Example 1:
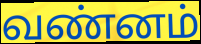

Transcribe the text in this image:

வண்னம்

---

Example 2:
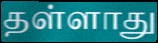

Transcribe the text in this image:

தள்ளாது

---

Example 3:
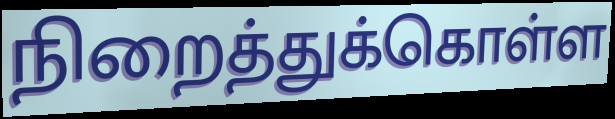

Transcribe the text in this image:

நிறைத்துக்கொள்ள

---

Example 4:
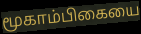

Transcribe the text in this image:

மூகாம்பிகையை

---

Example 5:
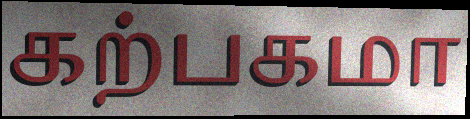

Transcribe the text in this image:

கற்பகமா